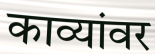
काव्यांवर